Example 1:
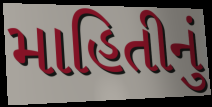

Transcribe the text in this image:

માહિતીનું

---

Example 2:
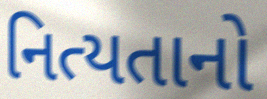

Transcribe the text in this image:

નિત્યતાનો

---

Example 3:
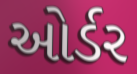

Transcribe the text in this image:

ઓર્ડર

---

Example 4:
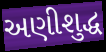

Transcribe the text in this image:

અણીશુદ્ધ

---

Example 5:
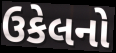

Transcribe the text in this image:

ઉકેલનો